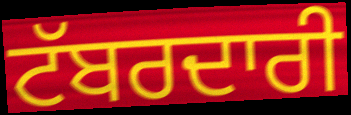
ਟੱਬਰਦਾਰੀ